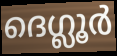
ദെഗ്ലൂർ